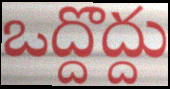
ఒద్దొద్దు